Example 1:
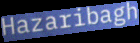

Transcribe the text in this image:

Hazaribagh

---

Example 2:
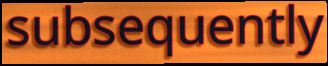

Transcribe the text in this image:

subsequently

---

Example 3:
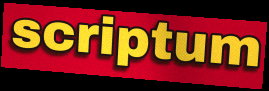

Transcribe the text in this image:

scriptum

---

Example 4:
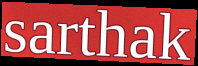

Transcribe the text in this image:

sarthak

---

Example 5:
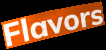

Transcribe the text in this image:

Flavors